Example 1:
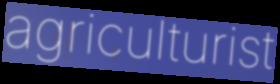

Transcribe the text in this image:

agriculturist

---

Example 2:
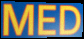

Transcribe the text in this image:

MED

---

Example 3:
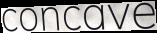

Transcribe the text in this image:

concave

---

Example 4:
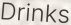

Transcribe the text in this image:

Drinks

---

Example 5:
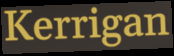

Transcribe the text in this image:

Kerrigan